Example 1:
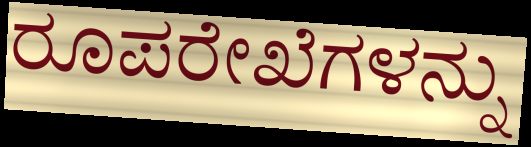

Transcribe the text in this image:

ರೂಪರೇಖೆಗಳನ್ನು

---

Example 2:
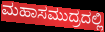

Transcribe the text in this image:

ಮಹಾಸಮುದ್ರದಲ್ಲಿ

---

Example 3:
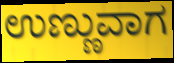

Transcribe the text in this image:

ಉಣ್ಣುವಾಗ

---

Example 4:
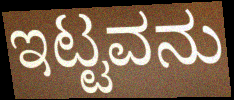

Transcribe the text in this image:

ಇಟ್ಟವನು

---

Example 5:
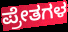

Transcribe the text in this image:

ಪ್ರೇತಗಳ